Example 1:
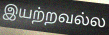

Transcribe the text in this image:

இயற்றவல்ல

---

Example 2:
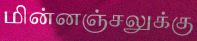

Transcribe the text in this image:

மின்னஞ்சலுக்கு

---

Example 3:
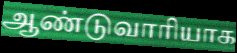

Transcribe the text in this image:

ஆண்டுவாரியாக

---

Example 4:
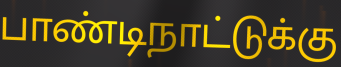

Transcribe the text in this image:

பாண்டிநாட்டுக்கு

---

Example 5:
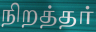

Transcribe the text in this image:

நிறத்தர்